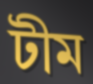
টীম